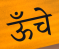
ऊँचे